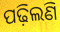
ପଢ଼ିଲଣି